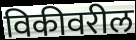
विकीवरील